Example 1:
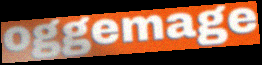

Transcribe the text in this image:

oggemage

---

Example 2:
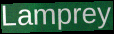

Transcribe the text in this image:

Lamprey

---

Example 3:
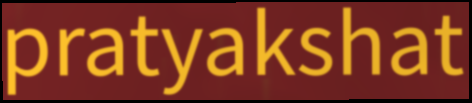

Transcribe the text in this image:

pratyakshat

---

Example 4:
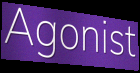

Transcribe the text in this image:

Agonist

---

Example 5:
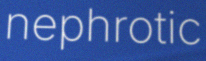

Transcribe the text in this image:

nephrotic